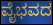
ವೈಭವದ